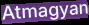
Atmagyan